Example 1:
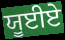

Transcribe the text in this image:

ਯੂਈਏ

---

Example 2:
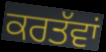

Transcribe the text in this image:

ਕਰਤੱਵਾਂ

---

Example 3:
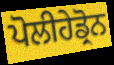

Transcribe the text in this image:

ਪੋਲੀਹੇਡ੍ਰੋਨ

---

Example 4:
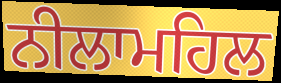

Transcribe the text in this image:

ਨੀਲਾਮਹਿਲ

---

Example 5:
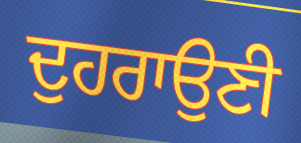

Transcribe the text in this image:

ਦੁਹਰਾਉਣੀ